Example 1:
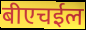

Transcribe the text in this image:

बीएचईल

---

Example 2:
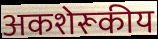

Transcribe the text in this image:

अकशेरूकीय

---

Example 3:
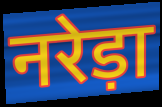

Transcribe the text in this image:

नरेड़ा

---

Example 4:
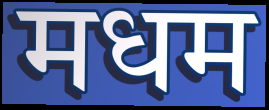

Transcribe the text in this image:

मधम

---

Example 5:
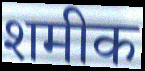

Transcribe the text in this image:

शमीक